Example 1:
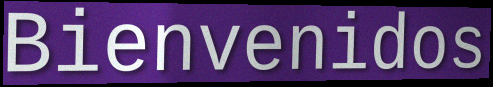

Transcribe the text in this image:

Bienvenidos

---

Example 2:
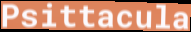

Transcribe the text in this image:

Psittacula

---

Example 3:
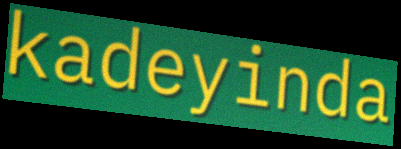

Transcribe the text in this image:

kadeyinda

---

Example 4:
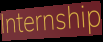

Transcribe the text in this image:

Internship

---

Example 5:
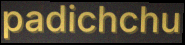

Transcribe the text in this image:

padichchu